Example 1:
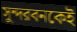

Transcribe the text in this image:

সুন্দরবনকেই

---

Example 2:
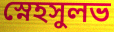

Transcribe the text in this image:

স্নেহসুলভ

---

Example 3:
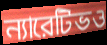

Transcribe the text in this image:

ন্যারেটিভও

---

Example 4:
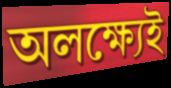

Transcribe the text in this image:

অলক্ষ্যেই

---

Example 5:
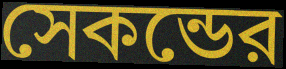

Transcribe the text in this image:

সেকন্ডের